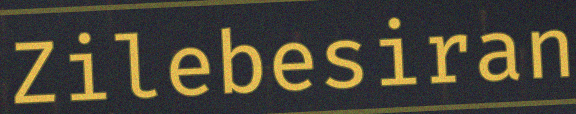
Zilebesiran